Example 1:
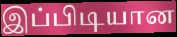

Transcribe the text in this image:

இப்பிடியான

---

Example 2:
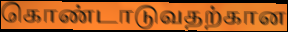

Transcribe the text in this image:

கொண்டாடுவதற்கான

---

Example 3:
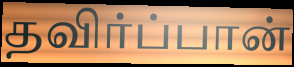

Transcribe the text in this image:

தவிர்ப்பான்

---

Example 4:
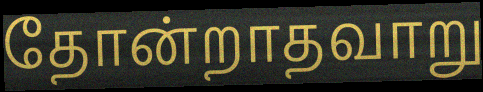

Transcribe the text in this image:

தோன்றாதவாறு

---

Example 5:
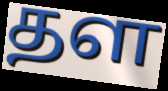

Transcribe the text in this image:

தள